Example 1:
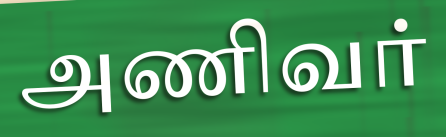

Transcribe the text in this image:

அணிவர்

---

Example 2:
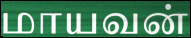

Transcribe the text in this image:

மாயவன்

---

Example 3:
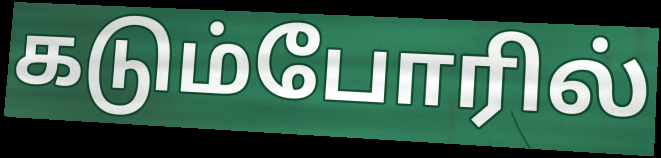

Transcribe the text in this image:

கடும்போரில்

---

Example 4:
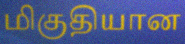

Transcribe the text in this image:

மிகுதியான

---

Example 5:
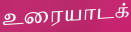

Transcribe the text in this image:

உரையாடக்